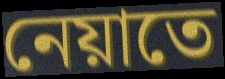
নেয়াতে